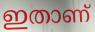
ഇതാണ്